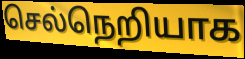
செல்நெறியாக